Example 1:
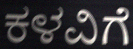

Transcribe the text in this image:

ಕಳವಿಗೆ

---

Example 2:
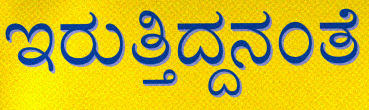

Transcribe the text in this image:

ಇರುತ್ತಿದ್ದನಂತೆ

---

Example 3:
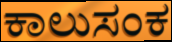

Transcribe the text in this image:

ಕಾಲುಸಂಕ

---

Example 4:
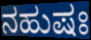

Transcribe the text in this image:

ನಹುಷಃ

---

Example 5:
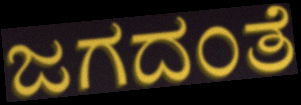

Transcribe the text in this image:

ಜಗದಂತೆ